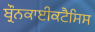
ਬ੍ਰੌਨਕਾਈਕਟੈਸਿਸ